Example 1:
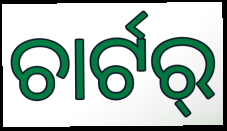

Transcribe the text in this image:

ଚାର୍ଟର୍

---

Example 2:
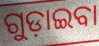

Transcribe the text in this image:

ଗୁଡ଼ାଇବା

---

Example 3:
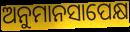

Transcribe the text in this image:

ଅନୁମାନସାପେକ୍ଷ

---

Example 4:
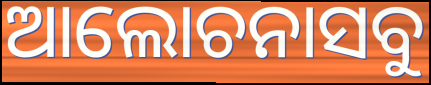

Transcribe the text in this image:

ଆଲୋଚନାସବୁ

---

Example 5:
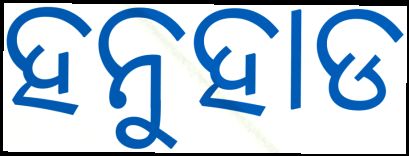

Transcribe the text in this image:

ହନୁହାଡ